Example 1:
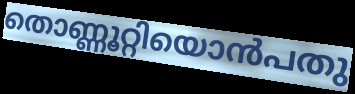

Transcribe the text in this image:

തൊണ്ണൂറ്റിയൊൻപതു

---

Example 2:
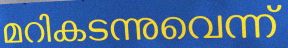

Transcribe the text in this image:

മറികടന്നുവെന്ന്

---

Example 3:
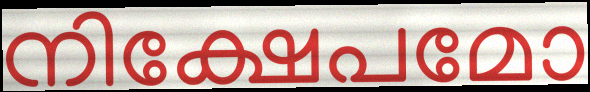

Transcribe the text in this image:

നിക്ഷേപമോ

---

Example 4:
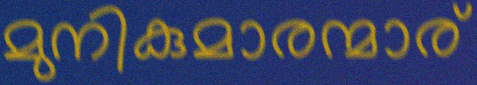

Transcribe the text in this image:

മുനികുമാരന്മാര്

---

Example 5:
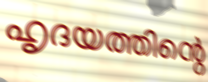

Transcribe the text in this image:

ഹൃദയത്തിന്റെ